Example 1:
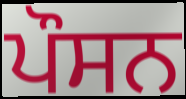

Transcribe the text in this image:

ਪੌਸਨ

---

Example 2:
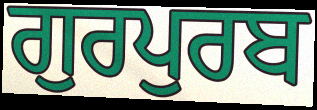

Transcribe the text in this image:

ਗੁਰਪੁਰਬ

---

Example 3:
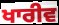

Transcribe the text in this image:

ਖਾਰੀਵ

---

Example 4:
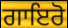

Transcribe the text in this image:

ਗਾਇਰੋ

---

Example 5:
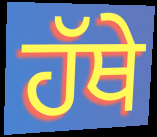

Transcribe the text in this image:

ਹੱਥੇ